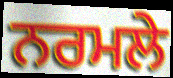
ਨਰਮਲੇ